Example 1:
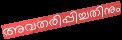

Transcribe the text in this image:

അവതരിപ്പിച്ചതിനും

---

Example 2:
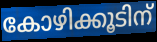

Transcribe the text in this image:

കോഴിക്കൂടിന്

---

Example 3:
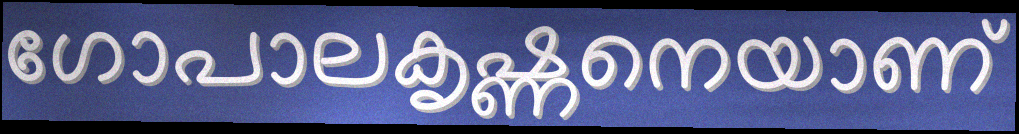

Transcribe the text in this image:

ഗോപാലകൃഷ്ണനെയാണ്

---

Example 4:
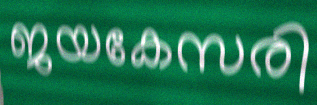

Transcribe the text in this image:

ജയകേസരി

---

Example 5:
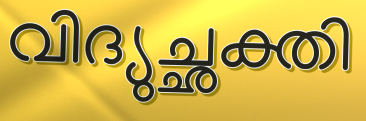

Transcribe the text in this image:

വിദ്യുച്ഛക്തി